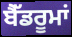
ਬੈੱਡਰੂਮਾਂ